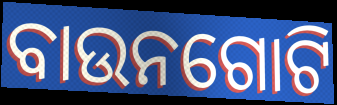
ବାଉନଗୋଟି